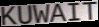
KUWAIT